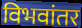
विभवांतर